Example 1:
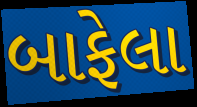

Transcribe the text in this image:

બાફેલા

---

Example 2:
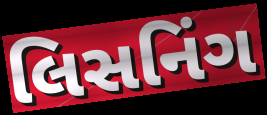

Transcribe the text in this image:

લિસનિંગ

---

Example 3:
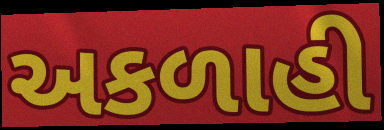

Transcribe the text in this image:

અકળાહી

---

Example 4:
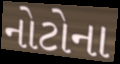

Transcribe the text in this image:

નોટોના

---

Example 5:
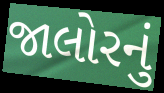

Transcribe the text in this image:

જાલોરનું